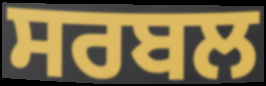
ਸਰਬਲ